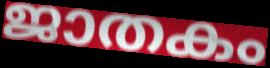
ജാതകം